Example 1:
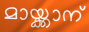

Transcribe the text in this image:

മായ്ക്കാന്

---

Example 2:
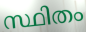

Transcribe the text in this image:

സ്ഥിതം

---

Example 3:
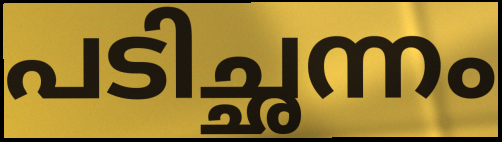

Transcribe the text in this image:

പടിച്ഛന്നം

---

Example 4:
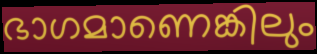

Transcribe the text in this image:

ഭാഗമാണെങ്കിലും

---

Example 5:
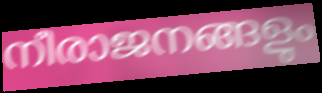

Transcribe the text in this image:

നീരാജനങ്ങളും